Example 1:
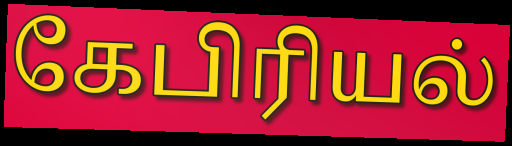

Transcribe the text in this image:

கேபிரியல்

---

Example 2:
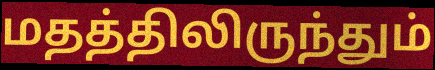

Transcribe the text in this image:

மதத்திலிருந்தும்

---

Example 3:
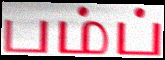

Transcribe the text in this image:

பம்ப்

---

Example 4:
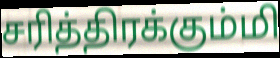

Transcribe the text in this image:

சரித்திரக்கும்மி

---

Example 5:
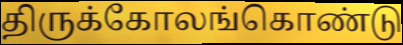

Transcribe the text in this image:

திருக்கோலங்கொண்டு